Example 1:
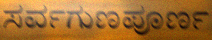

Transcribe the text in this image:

ಸರ್ವಗುಣಪೂರ್ಣ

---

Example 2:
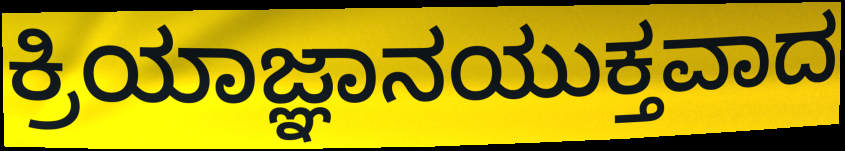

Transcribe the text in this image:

ಕ್ರಿಯಾಜ್ಞಾನಯುಕ್ತವಾದ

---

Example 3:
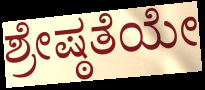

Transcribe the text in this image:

ಶ್ರೇಷ್ಠತೆಯೇ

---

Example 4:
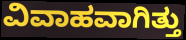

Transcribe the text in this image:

ವಿವಾಹವಾಗಿತ್ತು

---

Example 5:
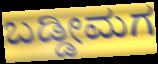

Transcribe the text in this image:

ಬಡ್ಡೀಮಗ